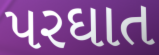
પરઘાત